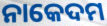
ନାକେଦମ